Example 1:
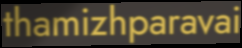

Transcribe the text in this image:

thamizhparavai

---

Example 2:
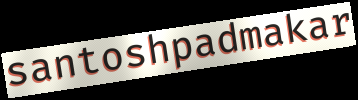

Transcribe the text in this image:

santoshpadmakar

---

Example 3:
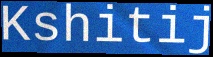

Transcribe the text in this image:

Kshitij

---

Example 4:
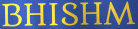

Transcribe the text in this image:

BHISHM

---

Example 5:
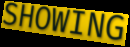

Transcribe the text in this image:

SHOWING